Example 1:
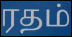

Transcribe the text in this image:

ரதம்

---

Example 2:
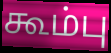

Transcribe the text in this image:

கூம்பு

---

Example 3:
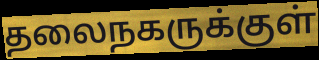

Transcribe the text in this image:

தலைநகருக்குள்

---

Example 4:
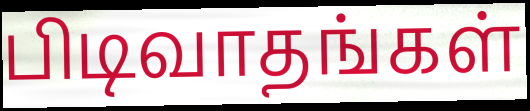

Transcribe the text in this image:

பிடிவாதங்கள்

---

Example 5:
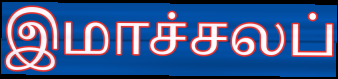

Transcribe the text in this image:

இமாச்சலப்